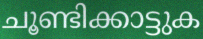
ചൂണ്ടിക്കാട്ടുക